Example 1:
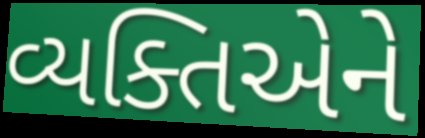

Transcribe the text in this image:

વ્યક્તિએને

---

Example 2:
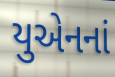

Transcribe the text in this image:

યુએનનાં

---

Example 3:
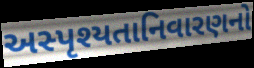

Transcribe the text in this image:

અસ્પૃશ્યતાનિવારણનો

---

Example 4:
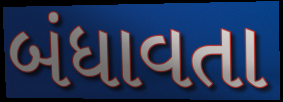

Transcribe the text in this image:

બંધાવતા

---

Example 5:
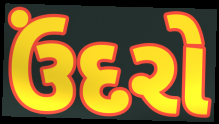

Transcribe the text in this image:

ઉંદરો